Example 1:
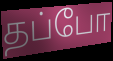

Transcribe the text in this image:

தப்போ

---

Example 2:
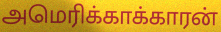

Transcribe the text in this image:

அமெரிக்காக்காரன்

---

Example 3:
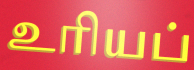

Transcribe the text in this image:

உரியப்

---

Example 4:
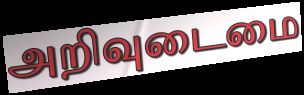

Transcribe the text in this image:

அறிவுடைமை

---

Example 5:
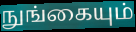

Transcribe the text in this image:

நுங்கையும்